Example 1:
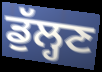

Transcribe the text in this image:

ਡੁੱਲ੍ਹਣ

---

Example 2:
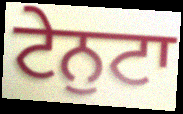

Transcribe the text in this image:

ਟੇਨੁਟਾ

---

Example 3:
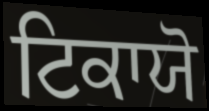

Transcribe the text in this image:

ਟਿਕਾਯੋ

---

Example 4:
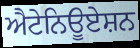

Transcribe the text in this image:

ਐਟੇਨਿਊਏਸ਼ਨ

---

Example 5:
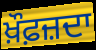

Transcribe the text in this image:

ਖ਼ੌਫ਼ਜ਼ਦਾ